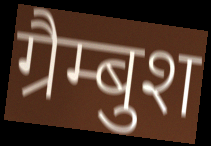
ग्रैम्बुश